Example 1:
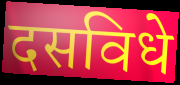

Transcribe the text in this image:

दसविधे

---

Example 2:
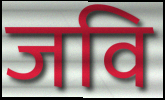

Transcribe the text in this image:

जवि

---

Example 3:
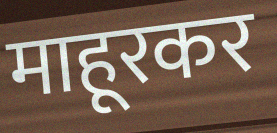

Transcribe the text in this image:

माहूरकर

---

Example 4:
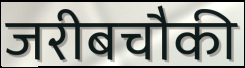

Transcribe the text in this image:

जरीबचौकी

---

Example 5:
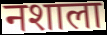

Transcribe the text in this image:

नशाला